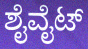
ಶೈವೈಟ್